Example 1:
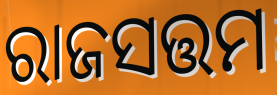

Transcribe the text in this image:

ରାଜସତ୍ତମ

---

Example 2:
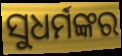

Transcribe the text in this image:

ସୁଧର୍ମଙ୍କର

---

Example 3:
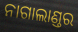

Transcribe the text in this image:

ନାଗାଲାଣ୍ଡର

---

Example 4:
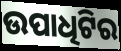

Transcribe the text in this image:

ଉପାଧିଟିର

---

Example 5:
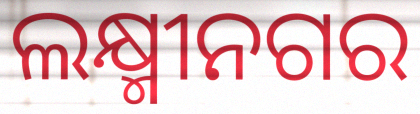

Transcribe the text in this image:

ଲକ୍ଷ୍ମୀନଗର